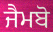
ਜੈਮਬੋ